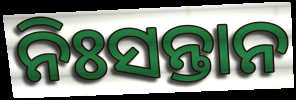
ନିଃସନ୍ତାନ